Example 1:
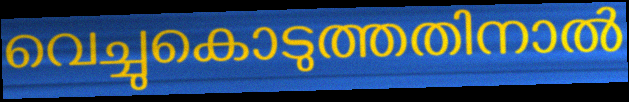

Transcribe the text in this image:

വെച്ചുകൊടുത്തതിനാൽ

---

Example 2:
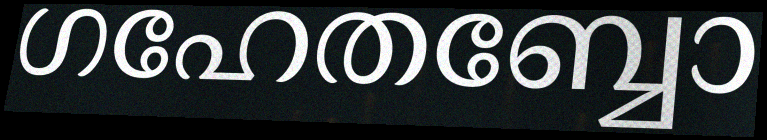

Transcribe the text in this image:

ഗഹേതബ്ബോ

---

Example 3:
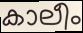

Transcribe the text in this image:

കാലീം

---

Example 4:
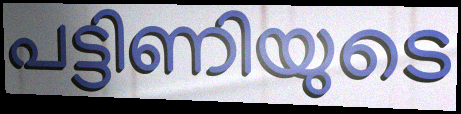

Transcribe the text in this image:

പട്ടിണിയുടെ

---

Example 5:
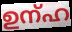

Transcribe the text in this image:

ഉന്ഹ